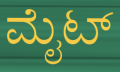
ಮೈಟ್